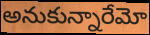
అనుకున్నారేమో